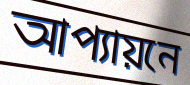
আপ্যায়নে